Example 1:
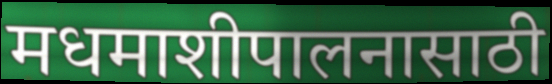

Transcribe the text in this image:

मधमाशीपालनासाठी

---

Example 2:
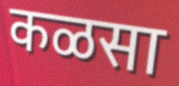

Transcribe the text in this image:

कळसा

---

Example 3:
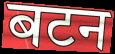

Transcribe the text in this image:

बटन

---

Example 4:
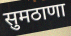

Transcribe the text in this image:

सुमठाणा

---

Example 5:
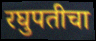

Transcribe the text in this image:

रघुपतीचा